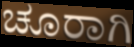
ಚೂರಾಗಿ